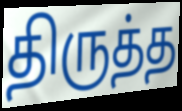
திருத்த